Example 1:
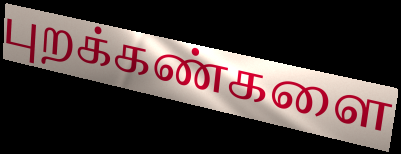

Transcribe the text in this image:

புறக்கண்களை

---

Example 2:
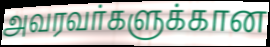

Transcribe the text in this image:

அவரவர்களுக்கான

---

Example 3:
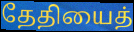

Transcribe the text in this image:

தேதியைத்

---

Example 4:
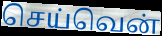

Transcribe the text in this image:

செய்வென்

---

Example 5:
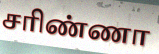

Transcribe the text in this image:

சரிண்ணா